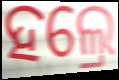
ହଲ୍ରେ